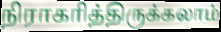
நிராகரித்திருக்கலாம்